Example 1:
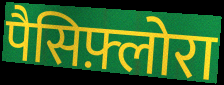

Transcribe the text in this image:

पैसिफ़्लोरा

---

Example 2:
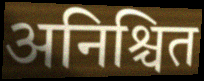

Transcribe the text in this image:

अनिश्चित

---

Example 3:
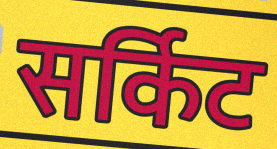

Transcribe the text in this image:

सर्किट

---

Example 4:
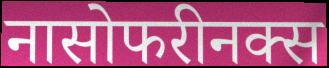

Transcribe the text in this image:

नासोफरीनक्स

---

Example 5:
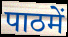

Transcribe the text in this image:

पाठमें